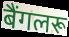
बैंगलरू